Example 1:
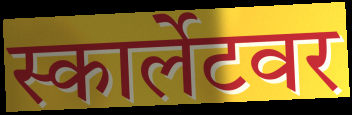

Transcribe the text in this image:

स्कार्लेटवर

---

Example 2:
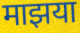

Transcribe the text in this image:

माझया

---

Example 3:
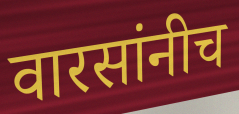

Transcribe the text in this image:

वारसांनीच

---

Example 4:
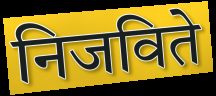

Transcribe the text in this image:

निजविते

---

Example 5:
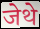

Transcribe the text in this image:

जेथे